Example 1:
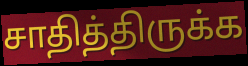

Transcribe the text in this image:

சாதித்திருக்க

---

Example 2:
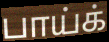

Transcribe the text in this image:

பாய்க்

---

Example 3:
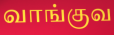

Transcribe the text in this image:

வாங்குவ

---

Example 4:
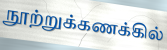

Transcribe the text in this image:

நூற்றுக்கணக்கில்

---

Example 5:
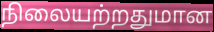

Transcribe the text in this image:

நிலையற்றதுமான